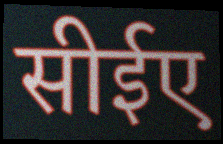
सीईए